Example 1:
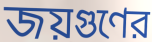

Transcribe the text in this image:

জয়গুণের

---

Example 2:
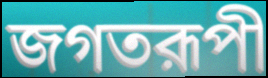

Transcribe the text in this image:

জগতরূপী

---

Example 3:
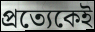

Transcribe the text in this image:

প্রত্যেকেই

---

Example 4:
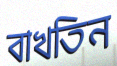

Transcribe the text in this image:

বাখতিন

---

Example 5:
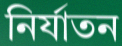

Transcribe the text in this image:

নির্যাতন